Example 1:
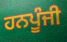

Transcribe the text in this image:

ਹਨਪੂੰਜੀ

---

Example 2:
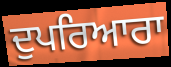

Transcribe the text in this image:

ਦੁਪਰਿਆਰਾ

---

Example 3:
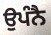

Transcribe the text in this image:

ਉਪੰਨੈ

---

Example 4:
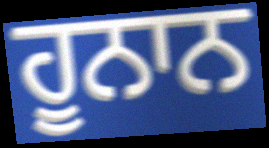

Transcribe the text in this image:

ਹੂਨਾਨ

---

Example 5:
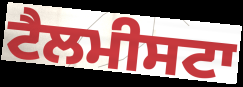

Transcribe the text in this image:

ਟੈਲਮੀਸਟਾ